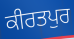
ਕੀਰਤਪੁਰ